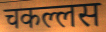
चकल्लस